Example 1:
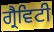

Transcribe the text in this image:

ਗ੍ਰੈਵਿਟੀ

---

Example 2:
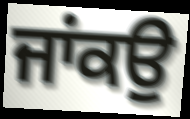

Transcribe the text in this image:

ਜਾਂਕਉ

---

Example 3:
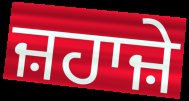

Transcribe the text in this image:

ਜ਼ਹਾਜ਼ੇ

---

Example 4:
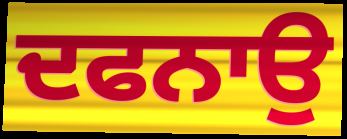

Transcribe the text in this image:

ਦਫਨਾਉ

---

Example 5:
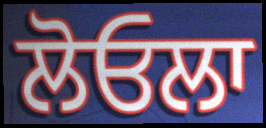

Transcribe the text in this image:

ਲੋਓਲਾ